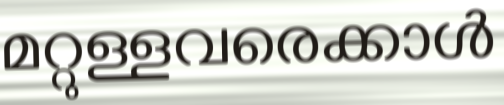
മറ്റുള്ളവരെക്കാൾ